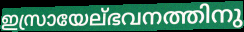
ഇസ്രായേല്ഭവനത്തിനു